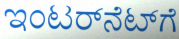
ಇಂಟರ್‌ನೆಟ್‌ಗೆ